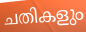
ചതികളും